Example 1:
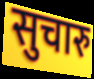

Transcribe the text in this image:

सुचारु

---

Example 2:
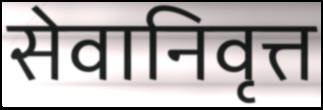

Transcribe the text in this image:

सेवानिवृत्त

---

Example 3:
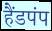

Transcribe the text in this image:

हैंडपंप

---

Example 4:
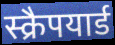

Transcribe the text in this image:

स्क्रैपयार्ड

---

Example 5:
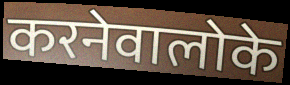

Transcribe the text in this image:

करनेवालोके